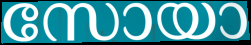
സോയാ